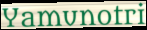
Yamunotri